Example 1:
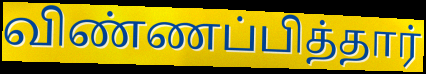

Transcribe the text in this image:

விண்ணப்பித்தார்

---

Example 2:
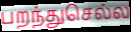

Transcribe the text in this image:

பறந்துசெல்ல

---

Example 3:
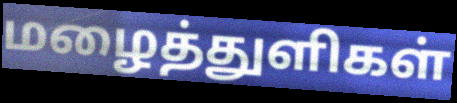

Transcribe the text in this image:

மழைத்துளிகள்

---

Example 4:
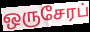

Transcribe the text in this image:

ஒருசேரப்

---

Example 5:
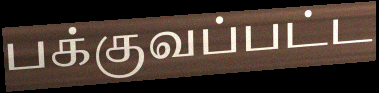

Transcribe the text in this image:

பக்குவப்பட்ட